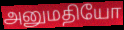
அனுமதியோ